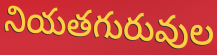
నియతగురువుల